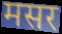
मसर